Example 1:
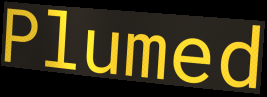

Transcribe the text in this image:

Plumed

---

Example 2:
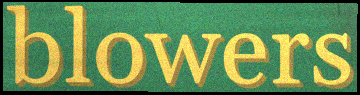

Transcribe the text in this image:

blowers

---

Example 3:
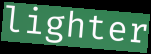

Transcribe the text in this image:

lighter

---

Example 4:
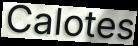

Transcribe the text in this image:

Calotes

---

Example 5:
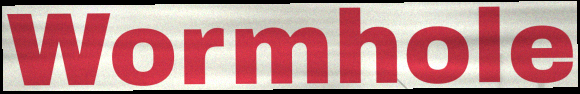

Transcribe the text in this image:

Wormhole